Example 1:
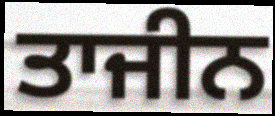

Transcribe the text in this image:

ਤਾਜੀਨ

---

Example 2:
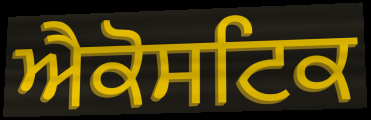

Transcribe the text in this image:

ਐਕੋਸਟਿਕ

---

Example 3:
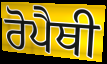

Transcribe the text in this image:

ਰੋਪੈਥੀ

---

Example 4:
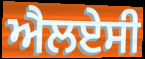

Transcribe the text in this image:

ਐਲਏਸੀ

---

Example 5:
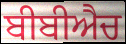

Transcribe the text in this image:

ਬੀਬੀਐਚ